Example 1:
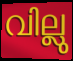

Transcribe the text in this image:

വില്ലു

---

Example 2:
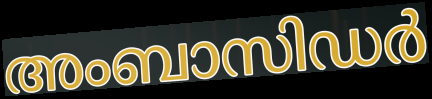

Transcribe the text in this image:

അംബാസിഡർ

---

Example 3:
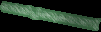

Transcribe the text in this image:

ഓർമ്മിപ്പിക്കുകയാണു്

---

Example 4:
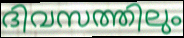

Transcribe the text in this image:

ദിവസത്തിലും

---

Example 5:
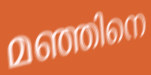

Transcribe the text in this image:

മഞ്ഞിനെ